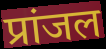
प्रांजल